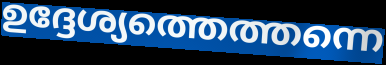
ഉദ്ദേശ്യത്തെത്തന്നെ